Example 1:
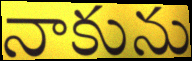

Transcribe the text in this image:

నాకును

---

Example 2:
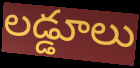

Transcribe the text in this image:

లడ్డూలు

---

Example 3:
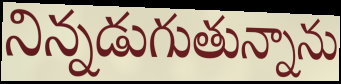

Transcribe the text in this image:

నిన్నడుగుతున్నాను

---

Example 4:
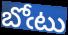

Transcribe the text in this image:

బోఁటు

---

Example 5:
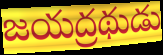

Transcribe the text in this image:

జయద్రథుడు